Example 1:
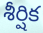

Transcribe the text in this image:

శీర్షిక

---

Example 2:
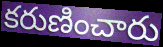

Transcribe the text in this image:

కరుణించారు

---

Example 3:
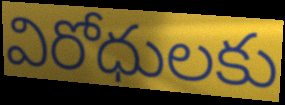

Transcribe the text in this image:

విరోధులకు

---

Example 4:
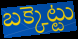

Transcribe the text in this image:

బక్కెట్టు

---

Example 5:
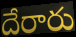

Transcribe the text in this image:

దేరారు